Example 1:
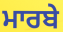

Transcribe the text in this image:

ਮਾਰਬੇ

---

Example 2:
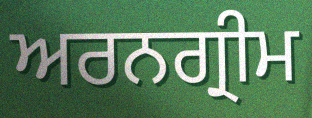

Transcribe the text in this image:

ਅਰਨਗ੍ਰੀਮ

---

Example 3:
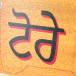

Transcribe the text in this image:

ਟੋਰੇ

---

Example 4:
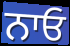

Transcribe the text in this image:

ਨਾਓ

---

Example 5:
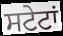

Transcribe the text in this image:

ਸਟੇਟਾਂ